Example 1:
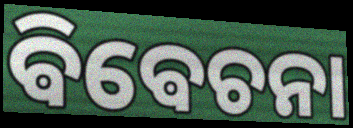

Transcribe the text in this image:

ଵିଵେଚନା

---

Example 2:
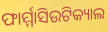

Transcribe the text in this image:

ଫାର୍ମ୍ମାସିଉଟିକ୍ୟାଲ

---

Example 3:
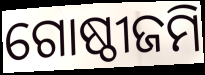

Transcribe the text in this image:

ଗୋଷ୍ଠୀଜମି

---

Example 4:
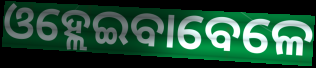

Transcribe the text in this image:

ଓହ୍ଲେଇବାବେଳେ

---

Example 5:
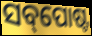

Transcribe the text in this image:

ସବ୍‌ପୋଷ୍ଟ